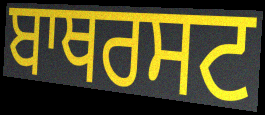
ਬਾਥਰਸਟ